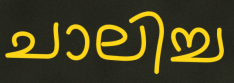
ചാലിച്ച